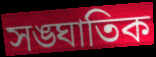
সঙ্ঘাতিক